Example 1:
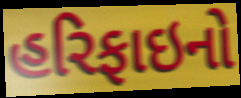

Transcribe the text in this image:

હરિફાઇનો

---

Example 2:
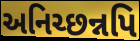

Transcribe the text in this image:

અનિચ્છન્નપિ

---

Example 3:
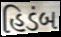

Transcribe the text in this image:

હિડંબ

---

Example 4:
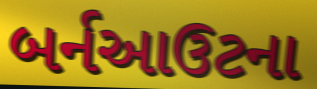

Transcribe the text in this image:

બર્નઆઉટના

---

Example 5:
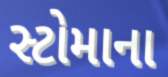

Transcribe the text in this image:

સ્ટોમાના